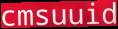
cmsuuid